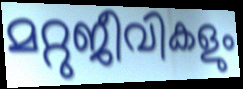
മറ്റുജീവികളും